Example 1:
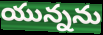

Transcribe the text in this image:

యున్నను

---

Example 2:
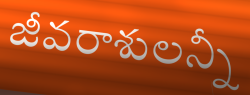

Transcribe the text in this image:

జీవరాశులన్నీ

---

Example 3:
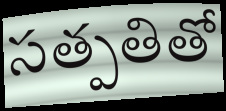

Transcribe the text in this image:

సత్పతితో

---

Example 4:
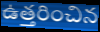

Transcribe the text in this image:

ఉత్తరించిన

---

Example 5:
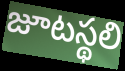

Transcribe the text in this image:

జూటస్థలి